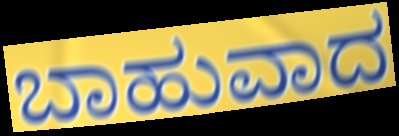
ಬಾಹುವಾದ